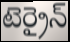
టెర్రైన్